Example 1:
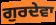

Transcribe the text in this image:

ਗੁਰਦੇਵਾ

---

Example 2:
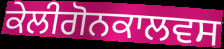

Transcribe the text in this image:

ਕੇਲੀਗੋਨਕਾਲਵਸ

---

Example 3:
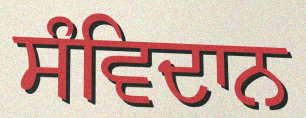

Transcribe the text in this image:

ਸੰਵਿਦਾਨ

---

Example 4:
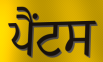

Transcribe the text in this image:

ਪੈਂਟਸ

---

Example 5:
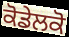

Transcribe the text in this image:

ਕੋਡੇਲਕੋ